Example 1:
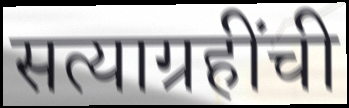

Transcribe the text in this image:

सत्याग्रहींची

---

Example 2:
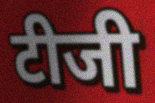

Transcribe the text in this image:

टीजी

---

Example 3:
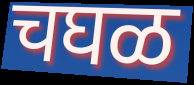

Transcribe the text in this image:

चघळ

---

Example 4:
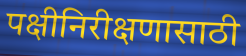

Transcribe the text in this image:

पक्षीनिरीक्षणासाठी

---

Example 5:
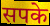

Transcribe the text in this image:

सपके